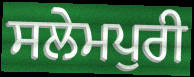
ਸਲੇਮਪੁਰੀ